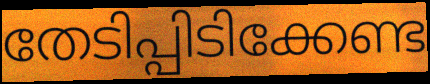
തേടിപ്പിടിക്കേണ്ട